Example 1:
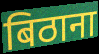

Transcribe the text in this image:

बिठाना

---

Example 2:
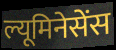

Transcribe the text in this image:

ल्यूमिनेसेंस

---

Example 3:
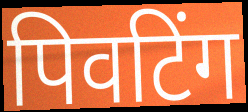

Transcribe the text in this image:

पिवटिंग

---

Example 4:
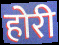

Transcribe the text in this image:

होरी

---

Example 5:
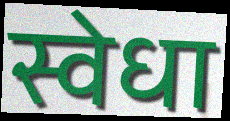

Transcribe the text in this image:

स्वेधा